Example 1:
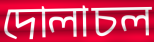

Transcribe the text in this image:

দোলাচল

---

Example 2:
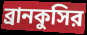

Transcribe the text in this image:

ব্রানকুসির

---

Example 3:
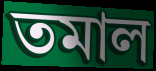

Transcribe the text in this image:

তমাল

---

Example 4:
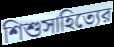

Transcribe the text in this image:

শিশুসাহিত্যের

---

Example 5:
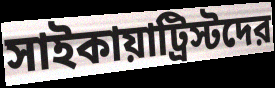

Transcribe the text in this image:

সাইকায়াট্রিস্টদের